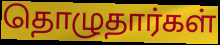
தொழுதார்கள்